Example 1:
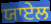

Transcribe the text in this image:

ਯਾਏਲ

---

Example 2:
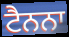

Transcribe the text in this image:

ਟੈਨਨਾ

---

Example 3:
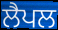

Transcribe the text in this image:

ਲੈਪਲ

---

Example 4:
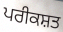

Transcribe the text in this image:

ਪਰੀਕਸ਼ਤ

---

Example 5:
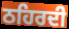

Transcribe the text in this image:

ਠਹਿਰਦੀ